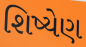
શિષ્યેણ